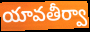
యావతీర్వా